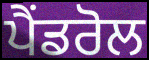
ਪੈਂਡਰੋਲ